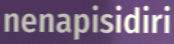
nenapisidiri